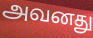
அவனது